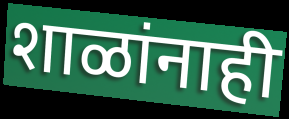
शाळांनाही